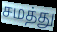
சமத்து